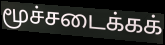
மூச்சடைக்கக்